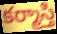
కర్మాస్తి